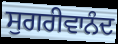
ਸੁਗਰੀਵਾਨੰਦ